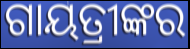
ଗାୟତ୍ରୀଙ୍କର